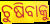
ଚୁଷିବାକୁ